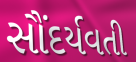
સૌંદર્યવતી